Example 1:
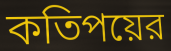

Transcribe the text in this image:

কতিপয়ের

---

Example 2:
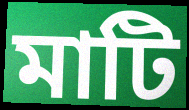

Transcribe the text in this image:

মাটি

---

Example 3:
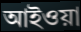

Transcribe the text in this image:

আইওয়া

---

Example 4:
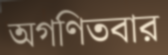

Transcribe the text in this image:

অগণিতবার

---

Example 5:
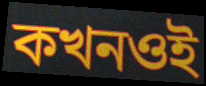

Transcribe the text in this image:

কখনওই